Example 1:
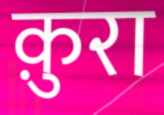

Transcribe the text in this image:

क़ुरा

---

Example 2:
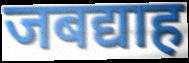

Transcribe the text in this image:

जबद्याह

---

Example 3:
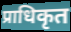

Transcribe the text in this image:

प्राधिकृत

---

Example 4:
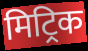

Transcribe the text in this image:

मिट्रिक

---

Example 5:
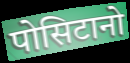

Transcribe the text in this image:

पोसिटानो